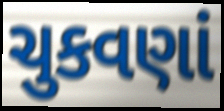
ચુકવણાં